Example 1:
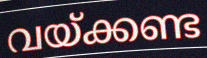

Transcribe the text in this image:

വയ്ക്കണ്ട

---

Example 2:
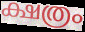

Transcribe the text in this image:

ക്ഷത്രം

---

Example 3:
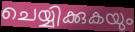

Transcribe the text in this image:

ചെയ്യിക്കുകയും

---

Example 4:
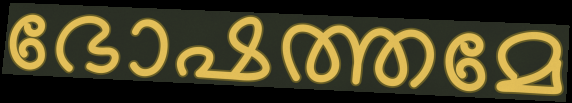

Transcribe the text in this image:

ഭോഷത്തമേ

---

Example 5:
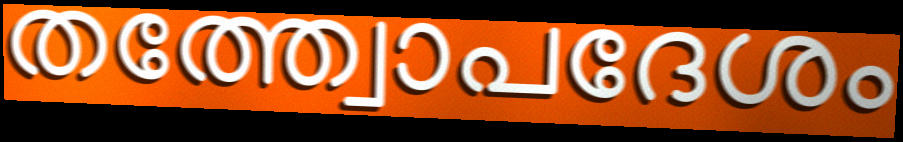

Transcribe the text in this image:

തത്ത്വോപദേശം